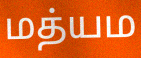
மத்யம